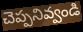
చెప్పనివ్వండి